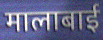
मालाबाई